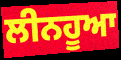
ਲੀਨਹੂਆ